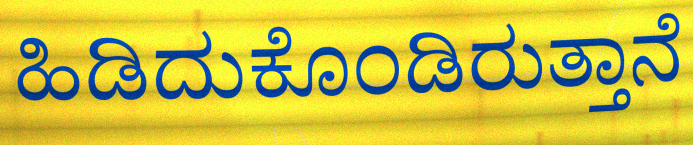
ಹಿಡಿದುಕೊಂಡಿರುತ್ತಾನೆ